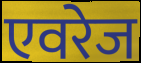
एवरेज